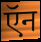
ऍन